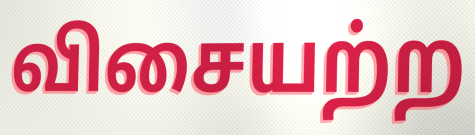
விசையற்ற